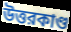
উত্তরকাণ্ড